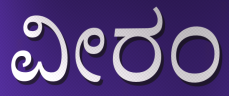
ವೀರಂ